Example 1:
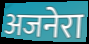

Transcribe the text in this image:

अजनेरा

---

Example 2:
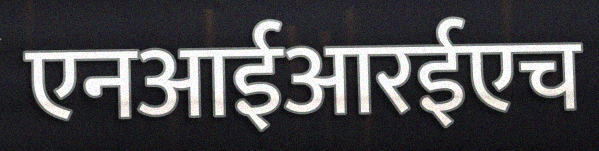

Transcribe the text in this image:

एनआईआरईएच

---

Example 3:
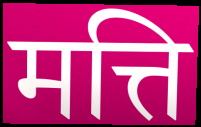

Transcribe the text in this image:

मत्ति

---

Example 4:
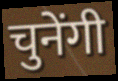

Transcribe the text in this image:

चुनेंगी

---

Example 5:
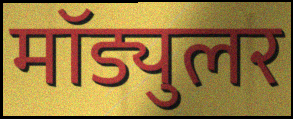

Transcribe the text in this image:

मॉड्युलर